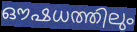
ഔഷധത്തിലും